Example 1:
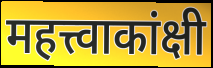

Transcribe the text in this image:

महत्त्वाकांक्षी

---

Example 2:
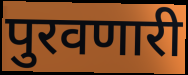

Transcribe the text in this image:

पुरवणारी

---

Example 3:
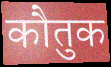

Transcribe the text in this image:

कौतुक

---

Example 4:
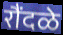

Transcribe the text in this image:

रौंदळे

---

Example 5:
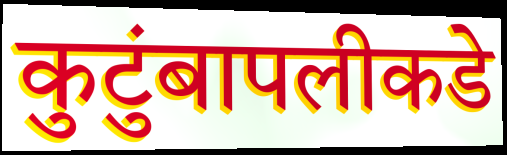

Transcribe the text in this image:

कुटुंबापलीकडे